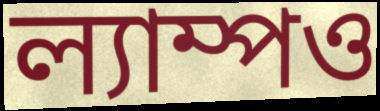
ল্যাম্পও